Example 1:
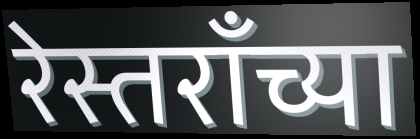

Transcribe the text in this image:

रेस्तराँच्या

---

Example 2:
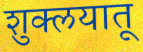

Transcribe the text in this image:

शुक्लयातू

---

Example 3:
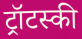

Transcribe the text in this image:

ट्रॉटस्की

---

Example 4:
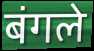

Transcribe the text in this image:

बंगले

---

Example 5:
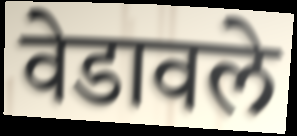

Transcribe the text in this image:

वेडावले